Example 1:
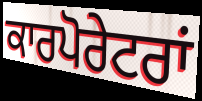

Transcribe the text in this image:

ਕਾਰਪੋਰੇਟਰਾਂ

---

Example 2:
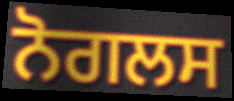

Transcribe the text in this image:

ਨੋਗਲਸ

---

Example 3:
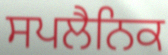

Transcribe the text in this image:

ਸਪਲੈਨਿਕ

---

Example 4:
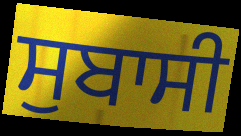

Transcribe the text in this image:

ਸੁਬਾਸੀ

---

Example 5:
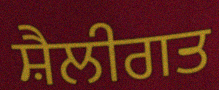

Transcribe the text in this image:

ਸ਼ੈਲੀਗਤ